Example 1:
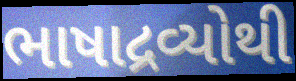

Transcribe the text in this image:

ભાષાદ્રવ્યોથી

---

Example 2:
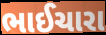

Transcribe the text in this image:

ભાઈચારા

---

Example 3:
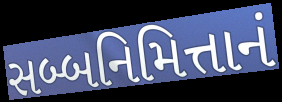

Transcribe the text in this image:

સબ્બનિમિત્તાનં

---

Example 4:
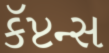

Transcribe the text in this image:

કૅપ્ટન્સ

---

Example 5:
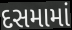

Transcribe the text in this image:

દસમામાં